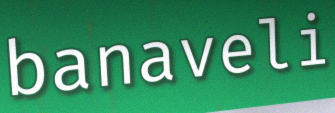
banaveli